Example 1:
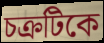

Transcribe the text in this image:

চক্রটিকে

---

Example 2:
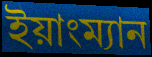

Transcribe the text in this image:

ইয়াংম্যান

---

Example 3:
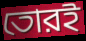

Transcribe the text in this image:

তোরই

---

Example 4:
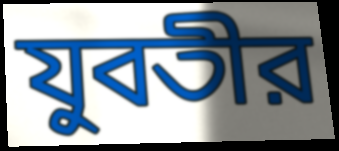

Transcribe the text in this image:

যুবতীর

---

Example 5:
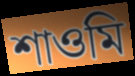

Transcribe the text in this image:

শাওমি